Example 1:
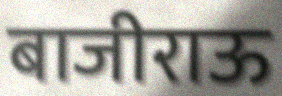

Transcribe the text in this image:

बाजीराऊ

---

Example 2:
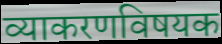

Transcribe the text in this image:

व्याकरणविषयक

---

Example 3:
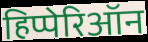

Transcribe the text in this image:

हिप्पेरिऑन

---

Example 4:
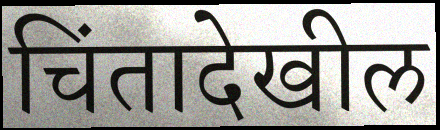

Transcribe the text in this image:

चिंतादेखील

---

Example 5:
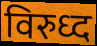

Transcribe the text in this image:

विरुध्द